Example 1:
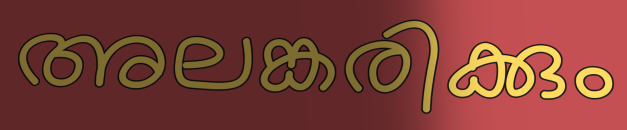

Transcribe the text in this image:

അലങ്കരിക്കും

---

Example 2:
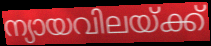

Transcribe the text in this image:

ന്യായവിലയ്ക്ക്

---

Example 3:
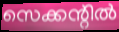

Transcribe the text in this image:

സെക്കന്റിൽ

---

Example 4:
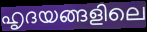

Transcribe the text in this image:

ഹൃദയങ്ങളിലെ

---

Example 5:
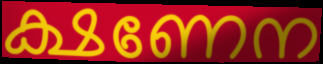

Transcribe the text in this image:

ക്ഷണേന